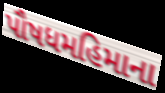
પૌષધમહિમાના